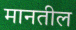
मानतील